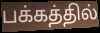
பக்கத்தில்